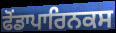
ਫੋਂਡਾਪਾਰਿਨਕਸ